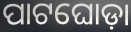
ପାଟଘୋଡ଼ା